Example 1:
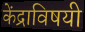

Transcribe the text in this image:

केंद्राविषयी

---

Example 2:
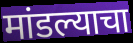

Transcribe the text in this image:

मांडल्याचा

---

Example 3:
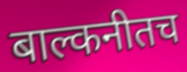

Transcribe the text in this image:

बाल्कनीतच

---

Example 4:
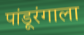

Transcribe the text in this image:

पांडूरंगाला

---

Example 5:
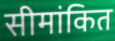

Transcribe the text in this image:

सीमांकित